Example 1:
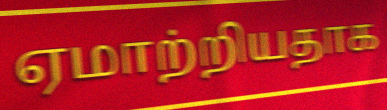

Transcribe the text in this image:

ஏமாற்றியதாக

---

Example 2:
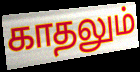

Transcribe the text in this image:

காதலும்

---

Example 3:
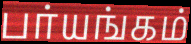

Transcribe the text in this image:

பர்யங்கம்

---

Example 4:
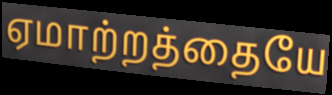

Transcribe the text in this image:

ஏமாற்றத்தையே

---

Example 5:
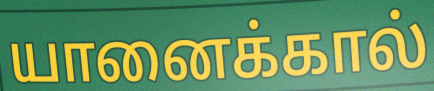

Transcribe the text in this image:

யானைக்கால்